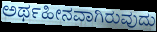
ಅರ್ಥಹೀನವಾಗಿರುವುದು